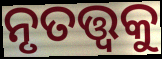
ନୃତତ୍ତ୍ଵକୁ